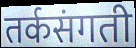
तर्कसंगती